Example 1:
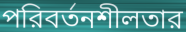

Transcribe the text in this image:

পরিবর্তনশীলতার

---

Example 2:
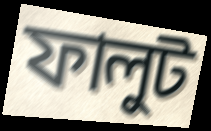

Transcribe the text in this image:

ফালুট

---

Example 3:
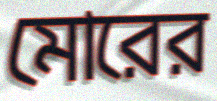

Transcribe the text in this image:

মোরের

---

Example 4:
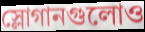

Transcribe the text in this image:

স্লোগানগুলোও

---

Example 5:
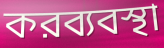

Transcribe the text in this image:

করব্যবস্থা